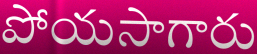
పోయసాగారు